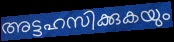
അട്ടഹസിക്കുകയും